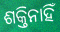
ଶକ୍ତିନାହିଁ